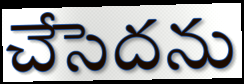
చేసెదను